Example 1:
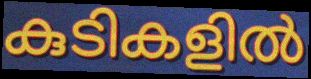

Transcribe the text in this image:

കുടികളിൽ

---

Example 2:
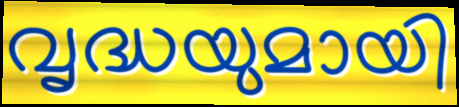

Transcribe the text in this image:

വൃദ്ധയുമായി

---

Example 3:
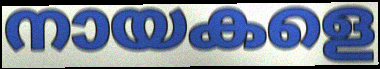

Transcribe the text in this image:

നായകളെ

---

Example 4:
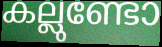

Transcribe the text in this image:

കല്ലുണ്ടോ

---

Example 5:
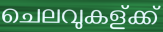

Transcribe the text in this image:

ചെലവുകള്ക്ക്